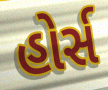
હોર્સ